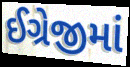
ઈગ્રેજીમાં